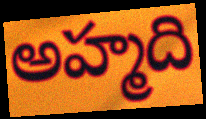
అహ్మది